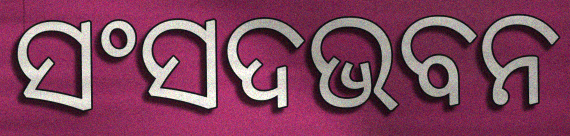
ସଂସଦଭବନ